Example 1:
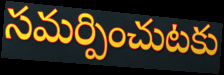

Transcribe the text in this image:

సమర్పించుటకు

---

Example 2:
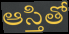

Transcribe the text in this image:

ఆస్తితో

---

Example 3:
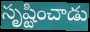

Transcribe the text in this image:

సృష్టించాడు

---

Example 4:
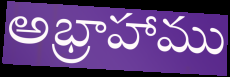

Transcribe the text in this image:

అభ్రాహాము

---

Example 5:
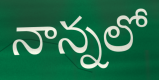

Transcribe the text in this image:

నాన్నలో